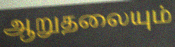
ஆறுதலையும்